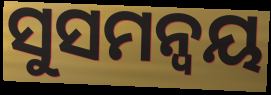
ସୁସମନ୍ଵୟ